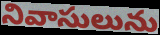
నివాసులును